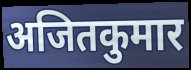
अजितकुमार